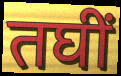
तघीं